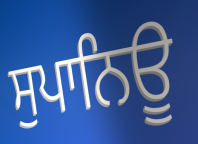
ਸੁਪਾਨਿਊ